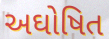
અઘોષિત